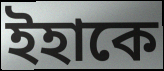
ইহাকে